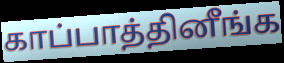
காப்பாத்தினீங்க